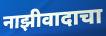
नाझीवादाचा